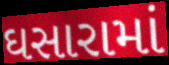
ઘસારામાં